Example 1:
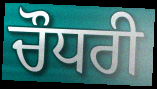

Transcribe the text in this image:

ਚੌਧਰੀ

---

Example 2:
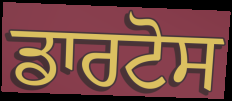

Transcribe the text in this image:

ਡਾਰਟੋਸ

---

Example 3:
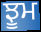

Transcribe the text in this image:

ਝੂਮ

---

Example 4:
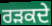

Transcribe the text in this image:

ਰੜਕਦੇ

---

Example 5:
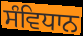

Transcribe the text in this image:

ਸੰਵਿਧਾਨ